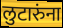
लुटारुंना